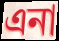
এনা